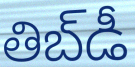
తిబ్‌డీ